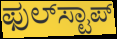
ಫುಲ್‍ಸ್ಟಾಪ್